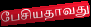
பேசியதாவது